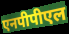
एनपीपीएल